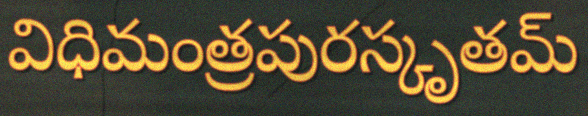
విధిమంత్రపురస్కృతమ్